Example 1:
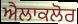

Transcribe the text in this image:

ਐਲਾਕਲੋਰ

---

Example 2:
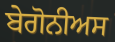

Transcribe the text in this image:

ਬੇਗੋਨੀਅਸ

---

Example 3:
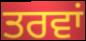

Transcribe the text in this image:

ਤਰਵਾਂ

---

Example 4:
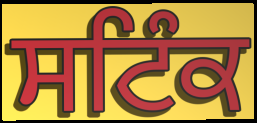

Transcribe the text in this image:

ਸਟਿੰਕ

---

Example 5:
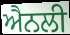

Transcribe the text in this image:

ਐਨਲੀ